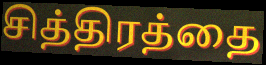
சித்திரத்தை